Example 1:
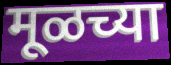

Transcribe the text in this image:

मूळच्या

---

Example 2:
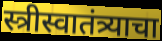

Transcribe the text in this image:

स्त्रीस्वातंत्र्याचा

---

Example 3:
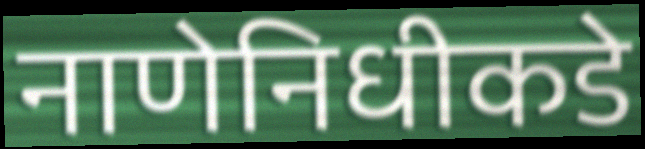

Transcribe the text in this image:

नाणेनिधीकडे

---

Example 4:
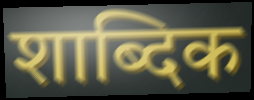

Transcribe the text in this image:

शाब्दिक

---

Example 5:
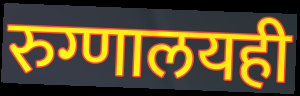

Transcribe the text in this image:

रुग्णालयही